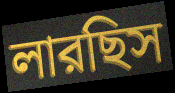
লারছিস